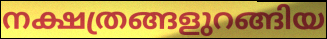
നക്ഷത്രങ്ങളുറങ്ങിയ